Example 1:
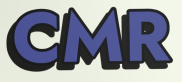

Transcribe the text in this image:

CMR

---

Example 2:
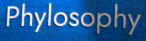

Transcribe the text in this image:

Phylosophy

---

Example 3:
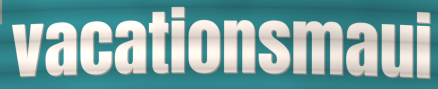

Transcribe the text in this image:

vacationsmaui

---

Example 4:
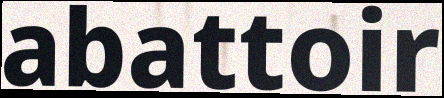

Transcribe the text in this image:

abattoir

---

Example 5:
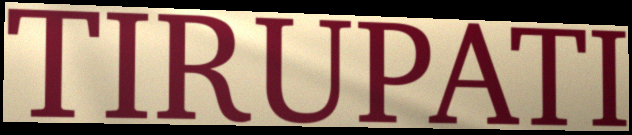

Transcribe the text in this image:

TIRUPATI